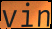
vin